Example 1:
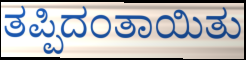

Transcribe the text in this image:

ತಪ್ಪಿದಂತಾಯಿತು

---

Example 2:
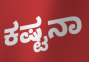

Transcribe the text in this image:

ಕಷ್ಟನಾ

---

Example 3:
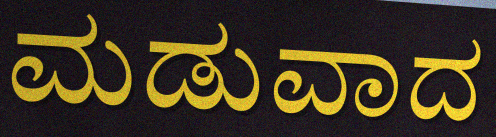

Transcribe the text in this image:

ಮಡುವಾದ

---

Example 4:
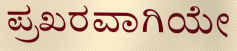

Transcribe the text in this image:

ಪ್ರಖರವಾಗಿಯೇ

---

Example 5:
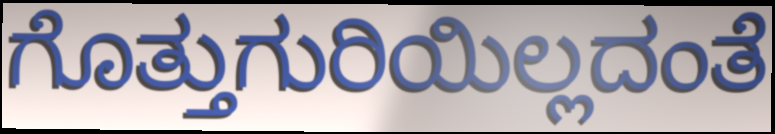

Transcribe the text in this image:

ಗೊತ್ತುಗುರಿಯಿಲ್ಲದಂತೆ